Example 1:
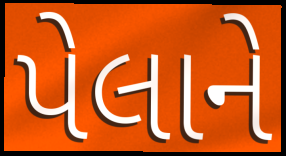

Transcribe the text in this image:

પેલાને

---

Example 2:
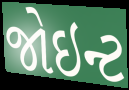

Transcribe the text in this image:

જોઇન્ટ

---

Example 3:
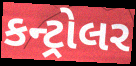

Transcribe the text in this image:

કન્ટ્રોલર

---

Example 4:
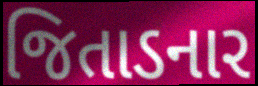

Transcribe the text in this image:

જિતાડનાર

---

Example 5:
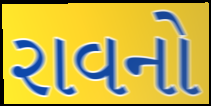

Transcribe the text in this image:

રાવનો